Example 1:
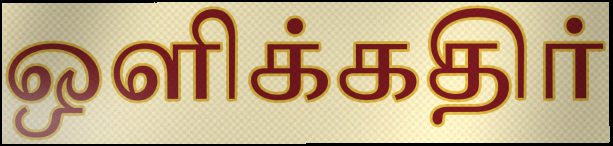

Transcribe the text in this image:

ஒளிக்கதிர்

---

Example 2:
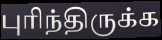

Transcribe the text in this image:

புரிந்திருக்க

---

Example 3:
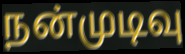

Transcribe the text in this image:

நன்முடிவு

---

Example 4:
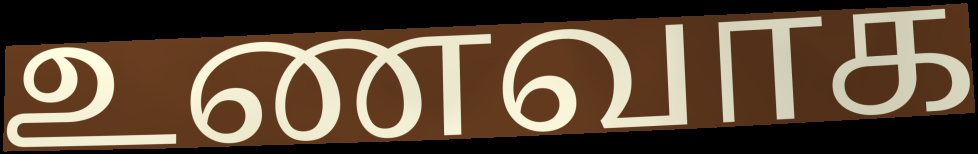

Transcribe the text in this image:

உணவாக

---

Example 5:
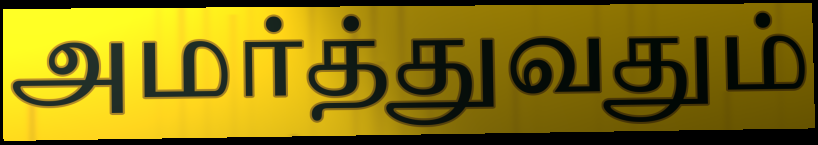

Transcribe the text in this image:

அமர்த்துவதும்